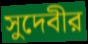
সুদেবীর